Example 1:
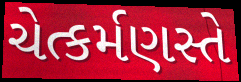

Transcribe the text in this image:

ચેત્કર્મણસ્તે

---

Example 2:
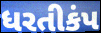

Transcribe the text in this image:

ધરતીકંપ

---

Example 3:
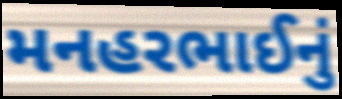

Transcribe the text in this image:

મનહરભાઈનું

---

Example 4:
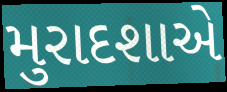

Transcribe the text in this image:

મુરાદશાએ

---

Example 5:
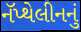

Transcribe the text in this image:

નૅપ્થેલીનનું